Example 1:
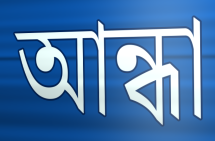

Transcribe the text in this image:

আন্ধা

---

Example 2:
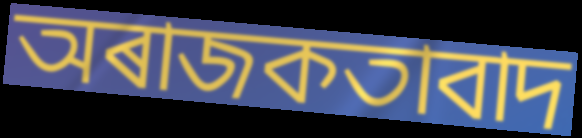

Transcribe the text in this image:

অৰাজকতাবাদ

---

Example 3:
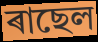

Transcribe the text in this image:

ৰাছেল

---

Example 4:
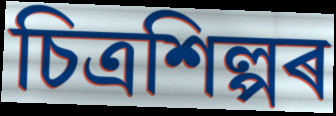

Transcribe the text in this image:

চিত্ৰশিল্পৰ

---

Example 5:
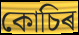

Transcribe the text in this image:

কোচিৰ